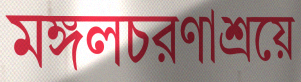
মঙ্গলচরণাশ্রয়ে